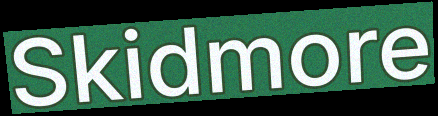
Skidmore